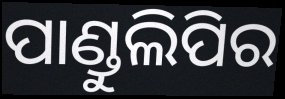
ପାଣ୍ଡୁଲିପିର